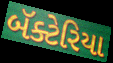
બૅક્ટેરિયા